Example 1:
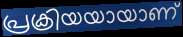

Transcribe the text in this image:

പ്രക്രിയയായാണ്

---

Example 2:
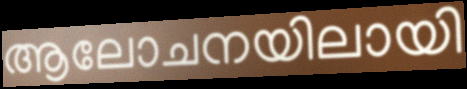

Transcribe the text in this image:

ആലോചനയിലായി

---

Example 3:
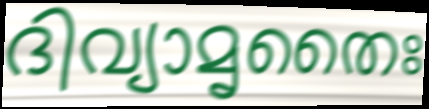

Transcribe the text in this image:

ദിവ്യാമൃതൈഃ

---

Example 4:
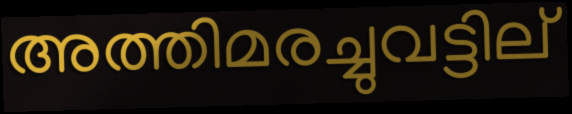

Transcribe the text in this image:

അത്തിമരച്ചുവട്ടില്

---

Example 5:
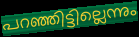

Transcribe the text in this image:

പറഞ്ഞിട്ടില്ലെന്നും